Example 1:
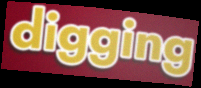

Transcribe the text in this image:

digging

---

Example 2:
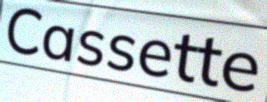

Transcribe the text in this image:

Cassette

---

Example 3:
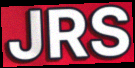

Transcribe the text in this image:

JRS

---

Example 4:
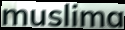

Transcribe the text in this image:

muslima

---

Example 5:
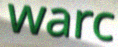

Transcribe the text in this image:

warc